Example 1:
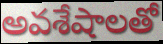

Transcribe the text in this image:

అవశేషాలతో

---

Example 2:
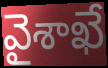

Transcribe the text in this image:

వైశాఖే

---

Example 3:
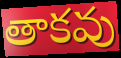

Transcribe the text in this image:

తాకవు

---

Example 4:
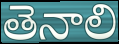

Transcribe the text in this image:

తెనాలి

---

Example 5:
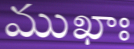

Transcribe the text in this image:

ముఖాః